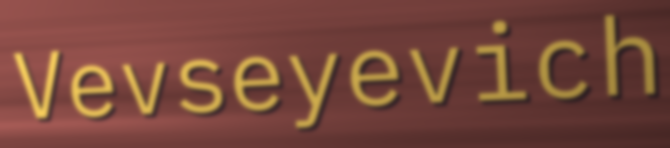
Vevseyevich